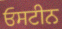
ਓਸਟੀਨ